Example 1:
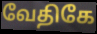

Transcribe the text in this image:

வேதிகே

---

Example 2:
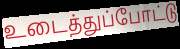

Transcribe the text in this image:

உடைத்துப்போட்டு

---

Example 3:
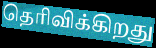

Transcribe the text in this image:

தெரிவிக்கிறது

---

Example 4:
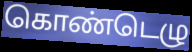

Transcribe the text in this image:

கொண்டெழு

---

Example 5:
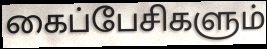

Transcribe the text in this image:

கைப்பேசிகளும்